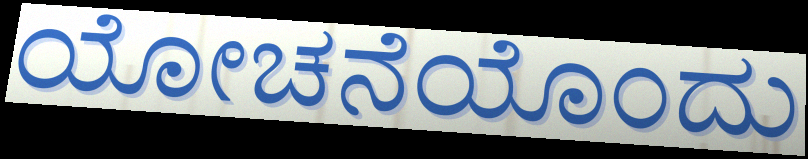
ಯೋಚನೆಯೊಂದು